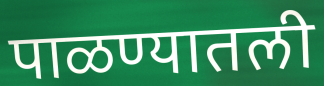
पाळण्यातली